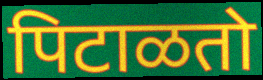
पिटाळतो